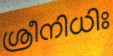
ശ്രീനിധിഃ